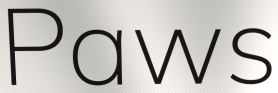
Paws